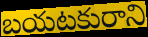
బయటకురాని